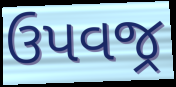
ઉપવજ્ર